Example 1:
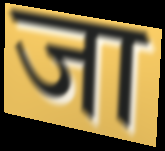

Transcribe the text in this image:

जा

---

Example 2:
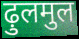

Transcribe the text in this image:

ढ़ुलमुल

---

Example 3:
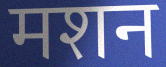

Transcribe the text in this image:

मशन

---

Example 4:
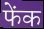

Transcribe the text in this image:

फेंक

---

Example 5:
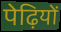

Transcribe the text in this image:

पेढ़ियों